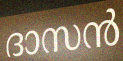
ദാസൻ